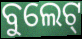
ବୁଲେଟ୍